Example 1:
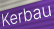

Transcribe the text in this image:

Kerbau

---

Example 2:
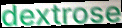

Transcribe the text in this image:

dextrose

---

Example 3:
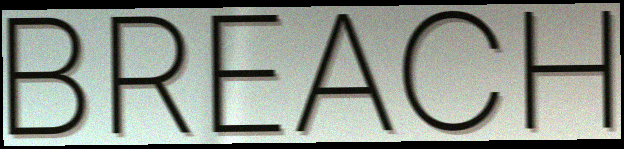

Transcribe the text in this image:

BREACH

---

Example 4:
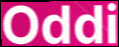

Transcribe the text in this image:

Oddi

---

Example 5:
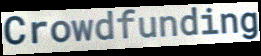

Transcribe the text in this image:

Crowdfunding